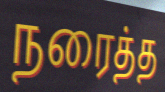
நரைத்த